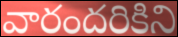
వారందరికిని